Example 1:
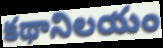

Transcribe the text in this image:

కథానిలయం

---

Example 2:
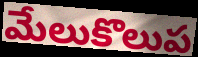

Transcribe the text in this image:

మేలుకొలుప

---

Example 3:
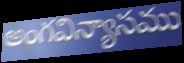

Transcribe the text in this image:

అంగవిన్యాసము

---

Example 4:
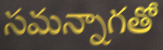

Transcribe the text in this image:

సమన్నాగతో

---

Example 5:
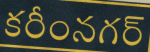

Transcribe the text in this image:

కరీంనగర్